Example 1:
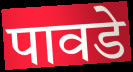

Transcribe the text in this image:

पावडे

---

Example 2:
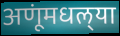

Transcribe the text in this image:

अणूंमधल्या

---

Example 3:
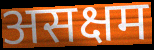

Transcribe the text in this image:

असक्षम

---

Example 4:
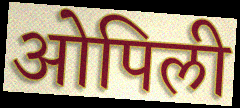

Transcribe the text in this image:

ओपिली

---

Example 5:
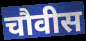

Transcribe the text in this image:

चौवीस